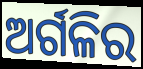
ଅର୍ଗଳିର